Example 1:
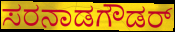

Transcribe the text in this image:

ಸರನಾಡಗೌಡರ್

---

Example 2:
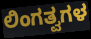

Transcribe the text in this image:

ಲಿಂಗತ್ವಗಳ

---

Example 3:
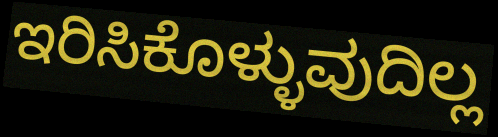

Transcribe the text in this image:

ಇರಿಸಿಕೊಳ್ಳುವುದಿಲ್ಲ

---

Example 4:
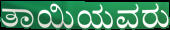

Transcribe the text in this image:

ತಾಯಿಯವರು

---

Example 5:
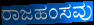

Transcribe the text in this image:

ರಾಜಹಂಸವು